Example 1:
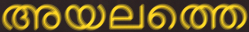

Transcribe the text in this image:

അയലത്തെ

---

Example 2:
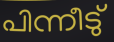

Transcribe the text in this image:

പിന്നീടു്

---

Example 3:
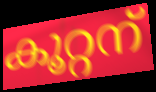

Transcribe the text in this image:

കൂറ്റന്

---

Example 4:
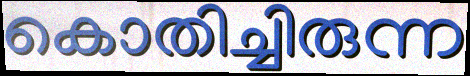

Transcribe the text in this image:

കൊതിച്ചിരുന്ന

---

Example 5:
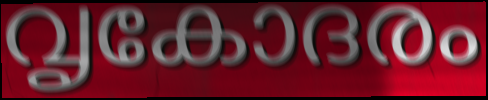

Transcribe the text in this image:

വൃകോദരം